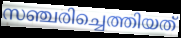
സഞ്ചരിച്ചെത്തിയത്